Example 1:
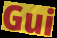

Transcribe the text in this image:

Gui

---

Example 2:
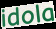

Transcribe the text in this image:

idola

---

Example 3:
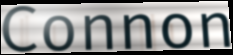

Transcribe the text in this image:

Connon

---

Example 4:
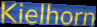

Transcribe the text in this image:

Kielhorn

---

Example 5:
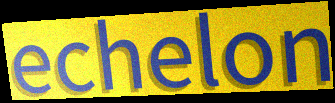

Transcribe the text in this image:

echelon